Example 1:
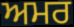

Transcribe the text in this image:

ਅਮਰ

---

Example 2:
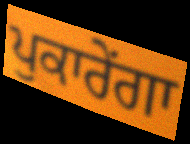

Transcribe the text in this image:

ਪੁਕਾਰੇਂਗਾ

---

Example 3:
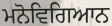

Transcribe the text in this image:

ਮਨੋਵਿਗਿਆਨ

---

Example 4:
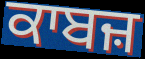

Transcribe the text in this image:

ਕਾਬਜ਼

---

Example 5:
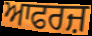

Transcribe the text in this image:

ਆਫਰਜ਼